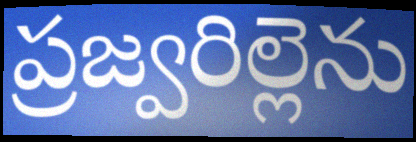
ప్రజ్వరిల్లెను